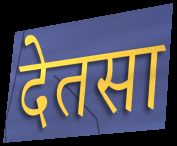
देतसा